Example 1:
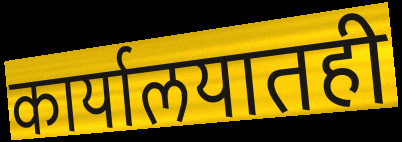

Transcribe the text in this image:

कार्यालयातही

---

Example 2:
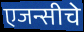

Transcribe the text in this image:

एजन्सीचे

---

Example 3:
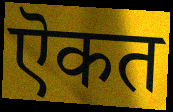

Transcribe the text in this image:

ऎकत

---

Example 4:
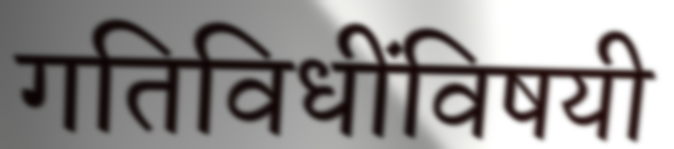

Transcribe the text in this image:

गतिविधींविषयी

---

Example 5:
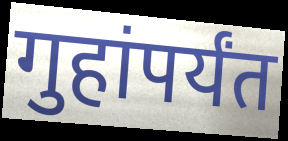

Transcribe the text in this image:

गुहांपर्यंत